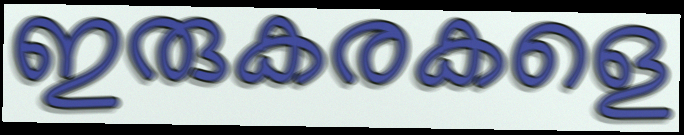
ഇരുകരകളെ